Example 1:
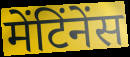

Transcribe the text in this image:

मेंटिंनेंस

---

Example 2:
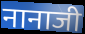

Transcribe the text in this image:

नानाजी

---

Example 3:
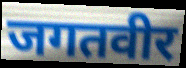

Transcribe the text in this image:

जगतवीर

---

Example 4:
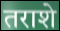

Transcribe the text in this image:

तराशे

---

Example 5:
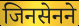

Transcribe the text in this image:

जिनसेनने